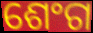
ଶେଂଗ